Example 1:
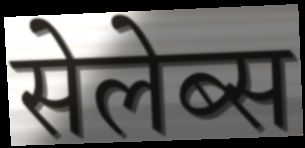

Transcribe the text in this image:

सेलेब्स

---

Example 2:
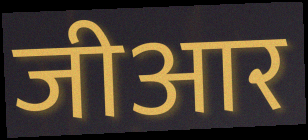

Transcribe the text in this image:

जीआर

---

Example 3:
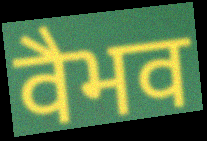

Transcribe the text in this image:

वैभव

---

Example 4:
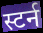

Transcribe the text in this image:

स्टर्न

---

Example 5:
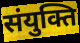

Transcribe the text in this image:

संयुक्ति